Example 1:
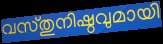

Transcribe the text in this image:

വസ്തുനിഷ്ഠവുമായി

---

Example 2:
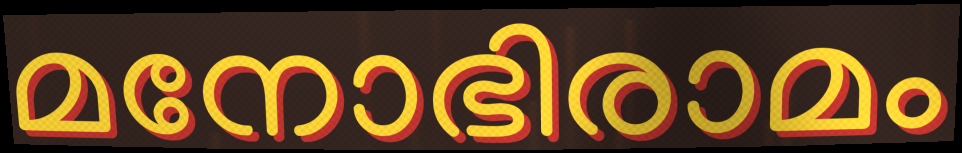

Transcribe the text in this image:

മനോഭിരാമം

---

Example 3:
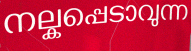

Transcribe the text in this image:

നല്കപ്പെടാവുന്ന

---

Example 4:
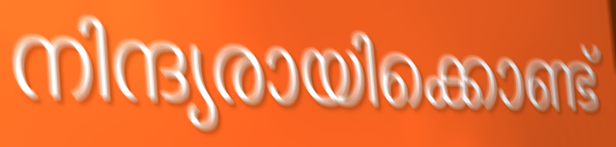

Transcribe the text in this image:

നിന്ദ്യരായിക്കൊണ്ട്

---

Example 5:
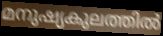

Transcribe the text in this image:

മനുഷ്യകുലത്തിൽ